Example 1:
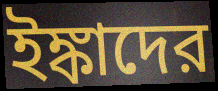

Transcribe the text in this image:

ইঙ্কাদের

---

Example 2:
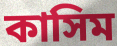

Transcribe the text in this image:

কাসিম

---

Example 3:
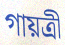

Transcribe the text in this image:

গায়ত্রী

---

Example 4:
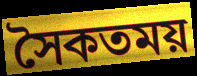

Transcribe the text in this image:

সৈকতময়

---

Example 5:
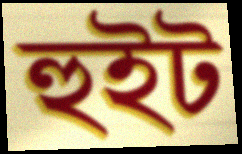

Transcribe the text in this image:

হুইট